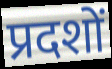
प्रदशों